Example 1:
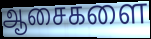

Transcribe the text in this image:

ஆசைகளை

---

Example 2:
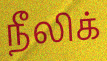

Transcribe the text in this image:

நீலிக்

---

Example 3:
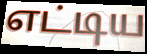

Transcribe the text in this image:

எட்டிய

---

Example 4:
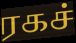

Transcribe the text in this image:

ரகச்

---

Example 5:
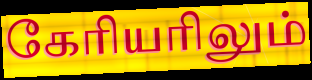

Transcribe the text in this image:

கேரியரிலும்